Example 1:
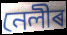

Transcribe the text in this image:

নেলীৰ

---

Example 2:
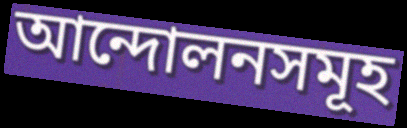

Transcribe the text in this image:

আন্দোলনসমূহ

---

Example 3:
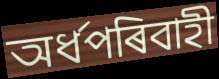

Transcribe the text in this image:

অৰ্ধপৰিবাহী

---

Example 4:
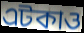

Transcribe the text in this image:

এটকাও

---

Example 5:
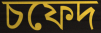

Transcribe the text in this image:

চফেদ